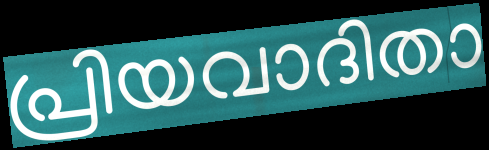
പ്രിയവാദിതാ